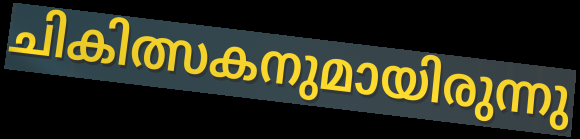
ചികിത്സകനുമായിരുന്നു